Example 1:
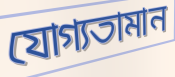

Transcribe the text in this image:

যোগ্যতামান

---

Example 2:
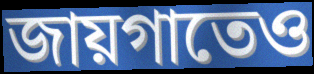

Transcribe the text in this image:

জায়গাতেও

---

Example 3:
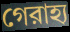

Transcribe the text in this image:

গেরাহ্য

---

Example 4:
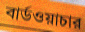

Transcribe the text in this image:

বার্ডওয়াচার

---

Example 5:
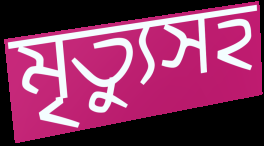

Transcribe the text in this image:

মৃত্যুসহ